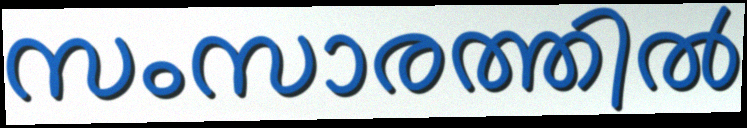
സംസാരത്തിൽ